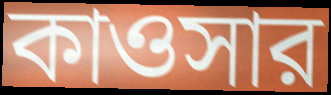
কাওসার